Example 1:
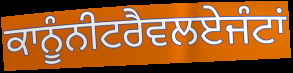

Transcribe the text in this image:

ਕਾਨੂੰਨੀਟਰੈਵਲਏਜੰਟਾਂ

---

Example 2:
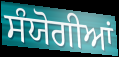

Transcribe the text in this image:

ਸੰਯੋਗੀਆਂ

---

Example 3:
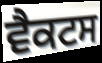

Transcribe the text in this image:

ਵੈਕਟਸ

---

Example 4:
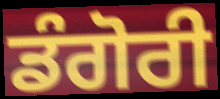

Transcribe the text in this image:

ਡੰਗੋਰੀ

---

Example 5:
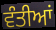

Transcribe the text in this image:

ਵੰਤੀਆਂ